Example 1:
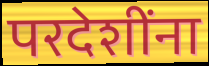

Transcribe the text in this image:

परदेशींना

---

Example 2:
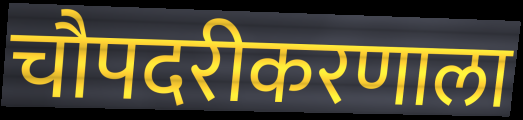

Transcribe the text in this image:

चौपदरीकरणाला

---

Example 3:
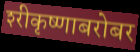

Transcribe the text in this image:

श्रीकृष्णाबरोबर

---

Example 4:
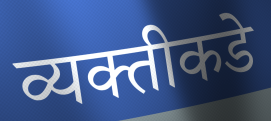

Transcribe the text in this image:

व्यक्तीकडे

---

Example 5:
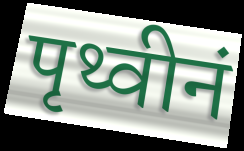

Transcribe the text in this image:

पृथ्वीनं